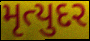
મૃત્યુદર